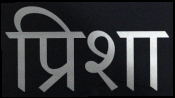
प्रिशा